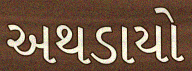
અથડાયો